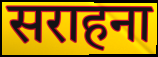
सराहना